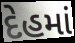
દેહમાં